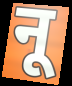
नू